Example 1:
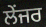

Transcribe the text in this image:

ਲੇਂਜਰ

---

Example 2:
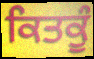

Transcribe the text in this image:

ਕਿਤਕੂੰ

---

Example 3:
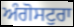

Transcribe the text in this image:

ਅੰਗੋਸਟੁਰਾ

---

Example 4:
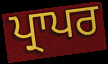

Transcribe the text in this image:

ਪ੍ਰਾਪਰ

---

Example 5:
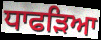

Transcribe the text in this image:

ਧਾਫੜਿਆ